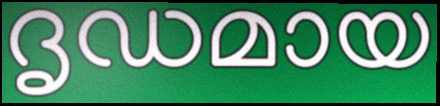
ദൃഡമായ